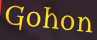
Gohon